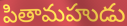
పితామహుడు